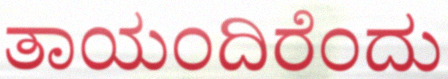
ತಾಯಂದಿರೆಂದು